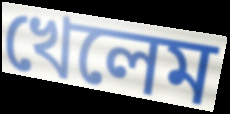
খেলেম